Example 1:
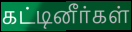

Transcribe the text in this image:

கட்டினீர்கள்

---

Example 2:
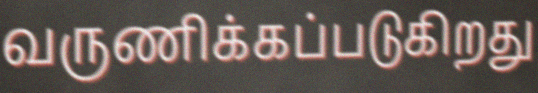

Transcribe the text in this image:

வருணிக்கப்படுகிறது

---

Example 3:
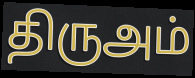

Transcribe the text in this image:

திருஅம்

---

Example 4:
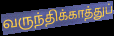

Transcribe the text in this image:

வருந்திக்காத்துப்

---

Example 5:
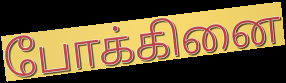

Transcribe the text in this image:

போக்கினை